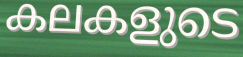
കലകളുടെ